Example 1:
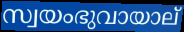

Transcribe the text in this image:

സ്വയംഭുവായാല്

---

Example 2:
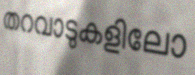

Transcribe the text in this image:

തറവാടുകളിലോ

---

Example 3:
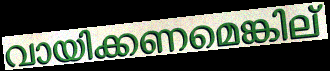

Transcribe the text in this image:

വായിക്കണമെങ്കില്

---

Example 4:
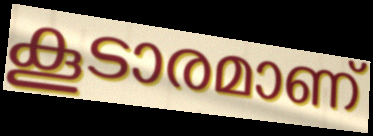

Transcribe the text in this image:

കൂടാരമാണ്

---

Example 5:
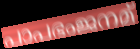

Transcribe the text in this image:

പാപഭംജനമ്